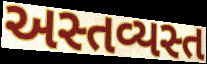
અસ્તવ્યસ્ત